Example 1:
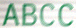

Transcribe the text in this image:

ABCC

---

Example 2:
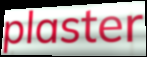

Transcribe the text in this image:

plaster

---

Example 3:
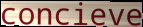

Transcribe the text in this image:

concieve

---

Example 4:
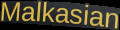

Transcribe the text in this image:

Malkasian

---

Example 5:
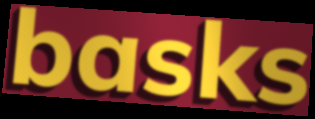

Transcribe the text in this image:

basks